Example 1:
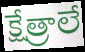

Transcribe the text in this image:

క్షేత్రాలే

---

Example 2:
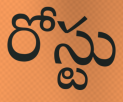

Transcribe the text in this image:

రోస్టు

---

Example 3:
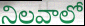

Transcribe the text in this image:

నిలవాలో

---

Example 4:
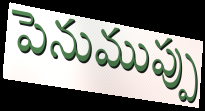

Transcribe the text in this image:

పెనుముప్పు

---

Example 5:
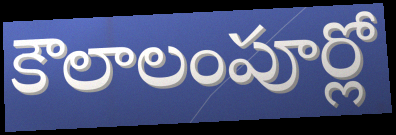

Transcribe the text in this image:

కౌలాలంపూర్లో